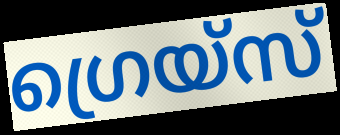
ഗ്രെയ്സ്